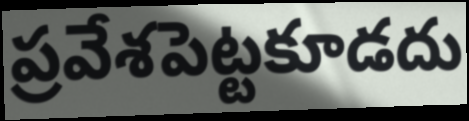
ప్రవేశపెట్టకూడదు